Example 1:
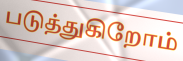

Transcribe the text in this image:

படுத்துகிறோம்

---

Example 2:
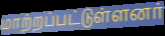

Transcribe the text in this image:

மாற்றப்பட்டுள்ளனர்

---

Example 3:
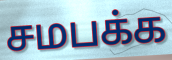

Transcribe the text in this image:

சமபக்க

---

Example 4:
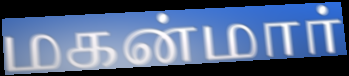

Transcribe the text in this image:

மகன்மார்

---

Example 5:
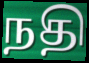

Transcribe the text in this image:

நதி